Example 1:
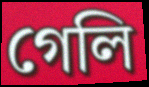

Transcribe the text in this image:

গেলি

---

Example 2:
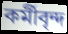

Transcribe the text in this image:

কর্মীবৃন্দ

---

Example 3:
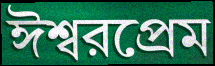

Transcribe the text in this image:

ঈশ্বরপ্রেম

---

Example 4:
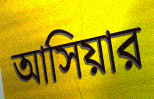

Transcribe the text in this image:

আসিয়ার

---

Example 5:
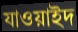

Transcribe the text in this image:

যাওয়াইদ